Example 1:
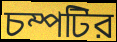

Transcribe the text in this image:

চম্পটির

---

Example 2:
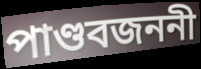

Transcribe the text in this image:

পাণ্ডবজননী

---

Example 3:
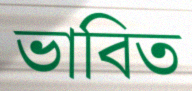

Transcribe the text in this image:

ভাবিত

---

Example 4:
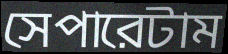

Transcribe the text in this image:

সেপারেটাম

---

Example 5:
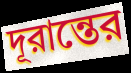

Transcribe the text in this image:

দূরান্তের